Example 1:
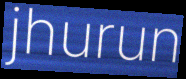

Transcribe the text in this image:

jhurun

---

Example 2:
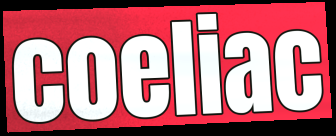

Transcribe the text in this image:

coeliac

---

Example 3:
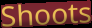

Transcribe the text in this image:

Shoots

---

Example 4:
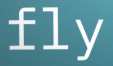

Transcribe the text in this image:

fly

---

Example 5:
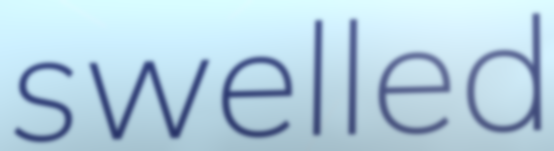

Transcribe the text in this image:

swelled